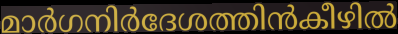
മാർഗനിർദേശത്തിൻകീഴിൽ